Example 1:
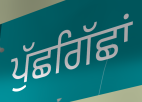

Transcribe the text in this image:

ਪੁੱਛਗਿੱਛਾਂ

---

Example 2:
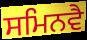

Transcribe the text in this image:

ਸਮਿਨਵੈ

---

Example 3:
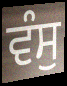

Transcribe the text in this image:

ਵੰਸੁ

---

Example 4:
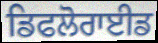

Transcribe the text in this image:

ਡਿਫਲੋਰਾਈਡ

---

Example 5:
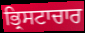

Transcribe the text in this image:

ਭ੍ਰਿਸਟਾਚਾਰ